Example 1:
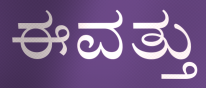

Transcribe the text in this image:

ಈವತ್ತು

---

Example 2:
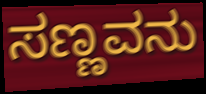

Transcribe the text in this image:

ಸಣ್ಣವನು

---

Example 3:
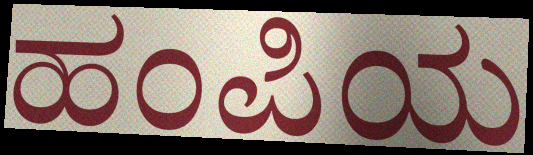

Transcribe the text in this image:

ಹಂಪಿಯ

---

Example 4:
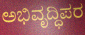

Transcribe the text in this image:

ಅಭಿವೃದ್ಧಿಪರ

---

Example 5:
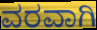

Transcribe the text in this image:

ವರವಾಗಿ